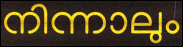
നിന്നാലും